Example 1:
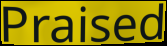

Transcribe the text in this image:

Praised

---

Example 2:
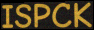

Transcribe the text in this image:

ISPCK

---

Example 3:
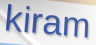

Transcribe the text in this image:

kiram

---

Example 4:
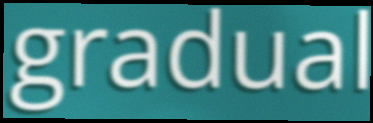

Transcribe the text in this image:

gradual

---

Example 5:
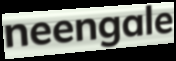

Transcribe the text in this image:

neengale